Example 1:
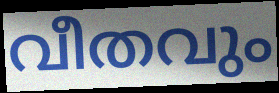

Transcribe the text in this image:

വീതവും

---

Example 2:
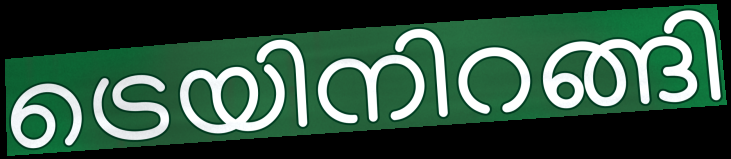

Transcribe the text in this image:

ട്രെയിനിറങ്ങി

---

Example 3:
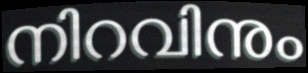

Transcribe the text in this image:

നിറവിനും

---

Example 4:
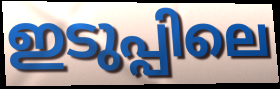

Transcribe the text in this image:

ഇടുപ്പിലെ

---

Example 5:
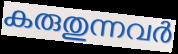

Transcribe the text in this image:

കരുതുന്നവർ